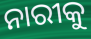
ନାରୀକୁ